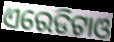
ଏରେଡିଟାଓ